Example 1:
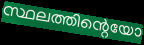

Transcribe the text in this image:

സ്ഥലത്തിന്റെയോ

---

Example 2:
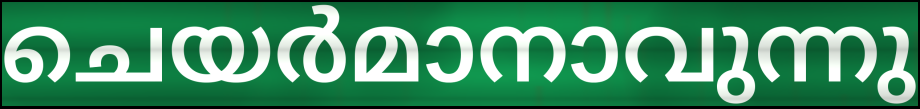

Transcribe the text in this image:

ചെയർമാനാവുന്നു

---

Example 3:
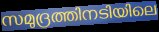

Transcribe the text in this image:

സമുദ്രത്തിനടിയിലെ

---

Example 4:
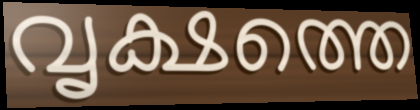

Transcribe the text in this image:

വൃക്ഷത്തെ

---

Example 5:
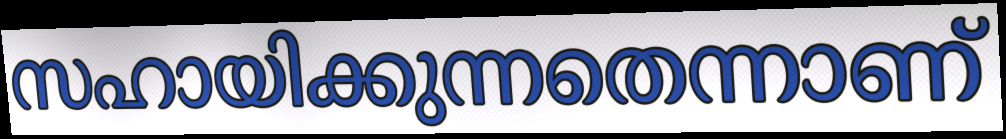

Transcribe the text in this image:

സഹായിക്കുന്നതെന്നാണ്